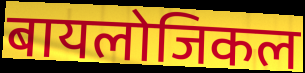
बायलोजिकल